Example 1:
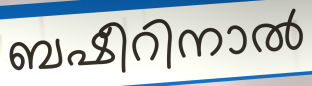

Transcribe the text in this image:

ബഷീറിനാൽ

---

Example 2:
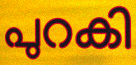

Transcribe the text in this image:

പുറകി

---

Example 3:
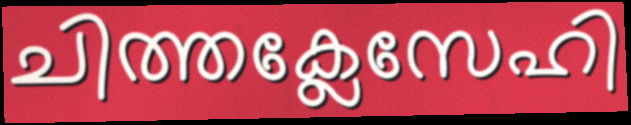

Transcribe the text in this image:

ചിത്തക്ലേസേഹി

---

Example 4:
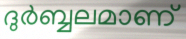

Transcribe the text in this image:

ദുർബ്ബലമാണ്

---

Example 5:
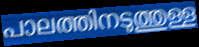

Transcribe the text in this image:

പാലത്തിനടുത്തുള്ള